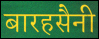
बारहसैनी